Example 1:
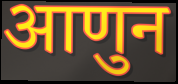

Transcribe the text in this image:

आणुन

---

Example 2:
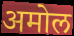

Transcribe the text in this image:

अमोल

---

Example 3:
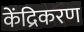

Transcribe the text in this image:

केंद्रिकरण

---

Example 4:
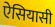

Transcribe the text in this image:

ऐसियासी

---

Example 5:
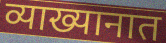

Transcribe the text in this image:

व्याख्यानात